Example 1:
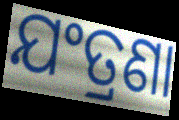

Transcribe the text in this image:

ଯଂତ୍ରଣା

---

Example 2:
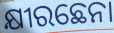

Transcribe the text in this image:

କ୍ଷୀରଛେନା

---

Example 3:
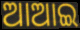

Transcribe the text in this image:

ଆଆଇ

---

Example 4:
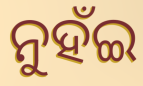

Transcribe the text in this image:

ନୁହଁଇ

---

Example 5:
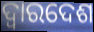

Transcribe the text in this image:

ଦ୍ୱାରଦେଶ